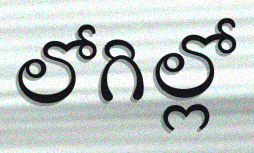
లోగిల్లో